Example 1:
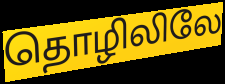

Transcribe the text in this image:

தொழிலிலே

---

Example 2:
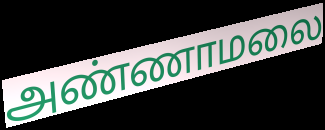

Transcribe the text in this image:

அண்ணாமலை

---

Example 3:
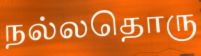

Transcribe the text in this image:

நல்லதொரு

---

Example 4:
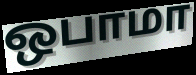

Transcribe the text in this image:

ஒபாமா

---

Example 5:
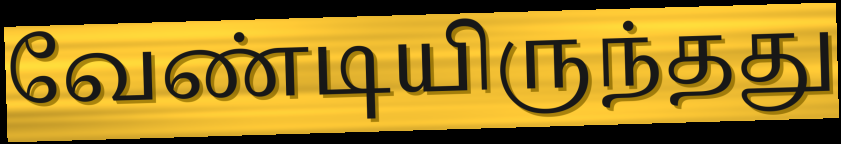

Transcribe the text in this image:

வேண்டியிருந்தது